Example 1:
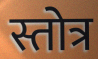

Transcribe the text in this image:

स्तोत्र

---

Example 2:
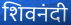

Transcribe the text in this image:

शिवनंदी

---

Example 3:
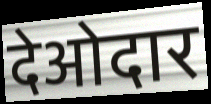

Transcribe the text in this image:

देओदार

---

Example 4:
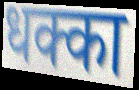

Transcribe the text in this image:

धक्का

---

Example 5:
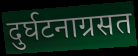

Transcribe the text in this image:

दुर्घटनाग्रसत